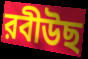
রবীউছ